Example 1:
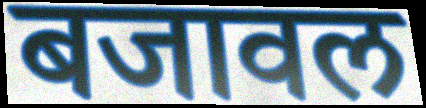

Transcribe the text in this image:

बजावल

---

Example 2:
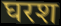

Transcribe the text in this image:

घरश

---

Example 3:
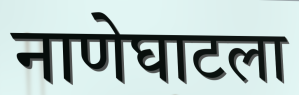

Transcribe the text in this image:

नाणेघाटला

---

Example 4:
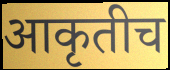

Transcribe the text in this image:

आकृतीच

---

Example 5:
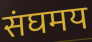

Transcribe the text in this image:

संघमय